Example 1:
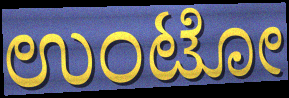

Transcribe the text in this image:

ಉಂಟೋ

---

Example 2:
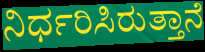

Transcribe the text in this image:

ನಿರ್ಧರಿಸಿರುತ್ತಾನೆ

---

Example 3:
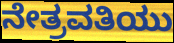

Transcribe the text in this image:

ನೇತ್ರವತಿಯು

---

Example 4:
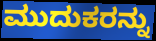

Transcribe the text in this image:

ಮುದುಕರನ್ನು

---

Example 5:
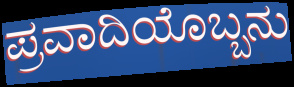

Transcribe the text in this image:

ಪ್ರವಾದಿಯೊಬ್ಬನು